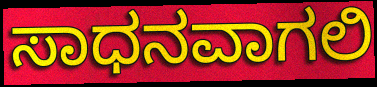
ಸಾಧನವಾಗಲಿ